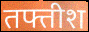
तफ्तीश